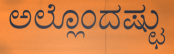
ಅಲ್ಲೊಂದಷ್ಟು